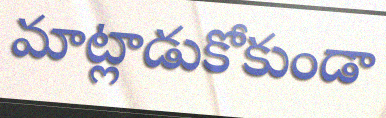
మాట్లాడుకోకుండా